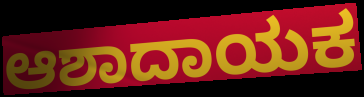
ಆಶಾದಾಯಕ